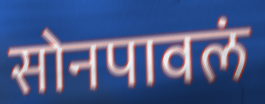
सोनपावलं